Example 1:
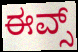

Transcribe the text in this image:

ಈವ್ಸ್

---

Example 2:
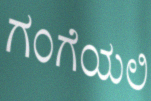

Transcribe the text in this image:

ಗಂಗೆಯಲಿ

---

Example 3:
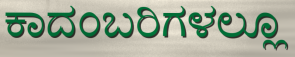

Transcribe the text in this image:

ಕಾದಂಬರಿಗಳಲ್ಲೂ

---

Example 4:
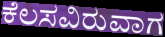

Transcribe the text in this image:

ಕೆಲಸವಿರುವಾಗ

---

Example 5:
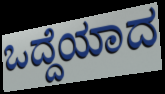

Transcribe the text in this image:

ಒದ್ದೆಯಾದ